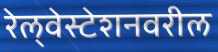
रेल्वेस्टेशनवरील